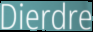
Dierdre